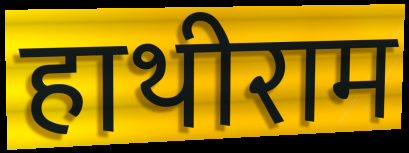
हाथीराम